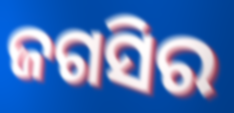
ଜଗସିର